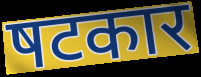
षटकार